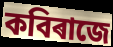
কবিৰাজে